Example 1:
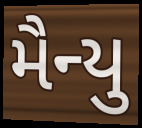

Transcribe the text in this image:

મૈન્યુ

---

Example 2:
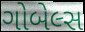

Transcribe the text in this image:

ગોબેલ્સ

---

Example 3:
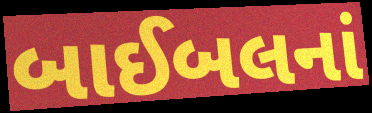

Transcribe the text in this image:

બાઈબલનાં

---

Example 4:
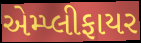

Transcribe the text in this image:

એમ્પ્લીફાયર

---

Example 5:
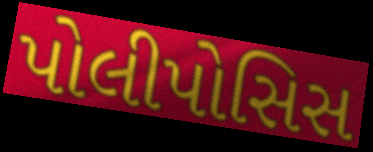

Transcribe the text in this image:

પોલીપોસિસ